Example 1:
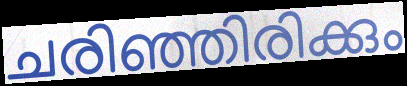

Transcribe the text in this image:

ചരിഞ്ഞിരിക്കും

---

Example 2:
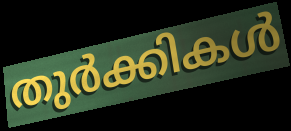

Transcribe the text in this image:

തുർക്കികൾ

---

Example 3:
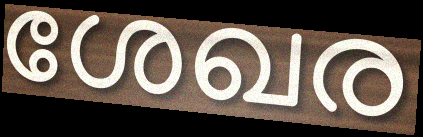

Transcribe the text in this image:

ശേഖര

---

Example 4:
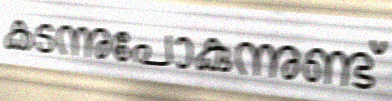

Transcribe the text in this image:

കടന്നുപോകുന്നുണ്ട്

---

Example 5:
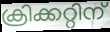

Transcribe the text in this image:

ക്രിക്കറ്റിന്